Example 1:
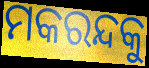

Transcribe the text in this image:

ମକରନ୍ଦକୁ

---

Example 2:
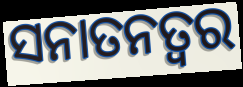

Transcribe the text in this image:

ସନାତନତ୍ୱର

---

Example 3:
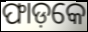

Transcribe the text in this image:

ଫାଡ଼କେ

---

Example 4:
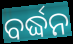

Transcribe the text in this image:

ବର୍ଦ୍ଧନ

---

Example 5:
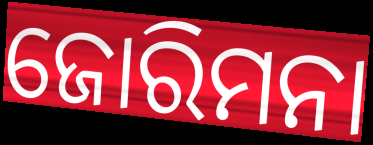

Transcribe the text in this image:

ଜୋରିମନା